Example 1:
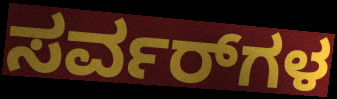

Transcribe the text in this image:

ಸರ್ವರ್‌ಗಳ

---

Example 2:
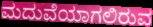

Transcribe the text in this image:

ಮದುವೆಯಾಗಲಿರುವ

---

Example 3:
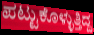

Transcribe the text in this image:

ಪಟ್ಟುಕೊಳ್ಳುತ್ತಿದ್ದ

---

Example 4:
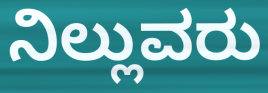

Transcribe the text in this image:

ನಿಲ್ಲುವರು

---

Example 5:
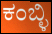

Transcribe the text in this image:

ಕಂಬ್ಳಿ